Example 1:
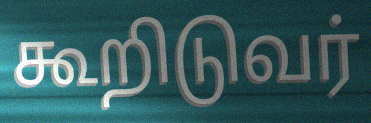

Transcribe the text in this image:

கூறிடுவர்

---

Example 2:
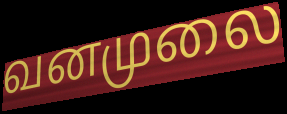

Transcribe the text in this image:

வனமுலை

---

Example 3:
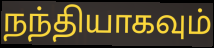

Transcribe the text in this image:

நந்தியாகவும்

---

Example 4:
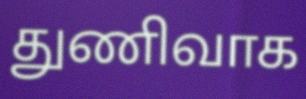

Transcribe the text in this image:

துணிவாக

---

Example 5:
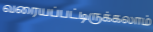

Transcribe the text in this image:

வரையப்பட்டிருக்கலாம்